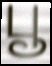
பூ